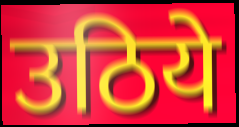
उठिये